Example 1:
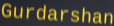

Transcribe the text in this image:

Gurdarshan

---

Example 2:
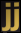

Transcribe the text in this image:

jj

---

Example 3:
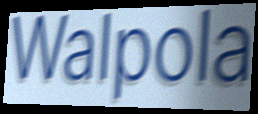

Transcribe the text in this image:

Walpola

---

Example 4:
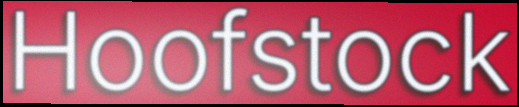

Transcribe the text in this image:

Hoofstock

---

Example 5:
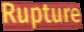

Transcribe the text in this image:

Rupture